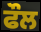
ਫੌਲ